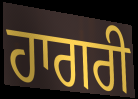
ਹਾਗਰੀ